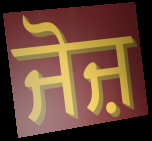
ਜੋਜ਼